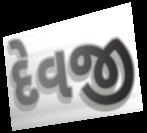
દેવજી